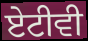
ਏਟੀਵੀ